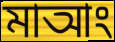
মাআং